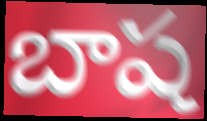
బాష